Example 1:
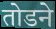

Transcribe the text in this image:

तोडने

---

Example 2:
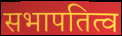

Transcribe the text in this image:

सभापतित्व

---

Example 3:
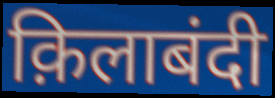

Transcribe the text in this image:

क़िलाबंदी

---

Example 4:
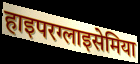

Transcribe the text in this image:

हाइपरग्लाइसेमिया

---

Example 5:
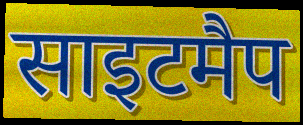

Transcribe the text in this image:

साइटमैप